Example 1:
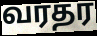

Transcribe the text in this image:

வரதர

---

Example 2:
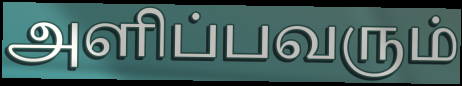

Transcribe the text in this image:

அளிப்பவரும்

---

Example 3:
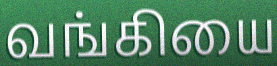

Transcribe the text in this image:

வங்கியை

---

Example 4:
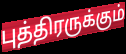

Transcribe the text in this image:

புத்திரருக்கும்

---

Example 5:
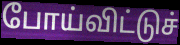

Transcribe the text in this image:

போய்விட்டுச்